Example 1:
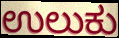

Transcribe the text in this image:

ಉಲುಕು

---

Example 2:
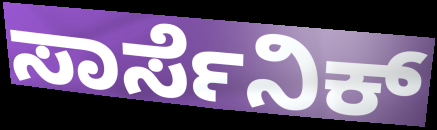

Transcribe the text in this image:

ಸಾರ್ಸೆನಿಕ್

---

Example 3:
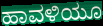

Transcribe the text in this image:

ಹಾವಳಿಯೂ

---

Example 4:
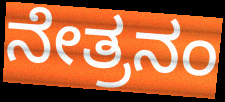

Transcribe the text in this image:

ನೇತ್ರನಂ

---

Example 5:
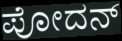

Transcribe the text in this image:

ಪೋದನ್